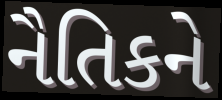
નૈતિકને